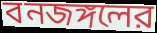
বনজঙ্গলের